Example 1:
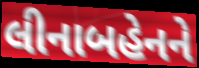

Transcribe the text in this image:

લીનાબહેનને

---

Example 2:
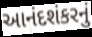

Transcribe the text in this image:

આનંદશંકરનું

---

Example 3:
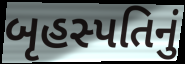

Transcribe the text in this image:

બૃહસ્પતિનું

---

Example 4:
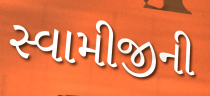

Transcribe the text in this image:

સ્વામીજીની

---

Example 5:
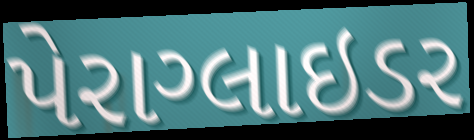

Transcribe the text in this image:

પેરાગ્લાઇડર